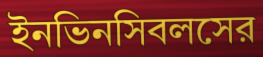
ইনভিনসিবলসের